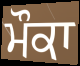
ਮੌਕਾ